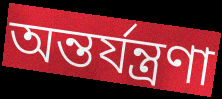
অন্তর্যন্ত্রণা